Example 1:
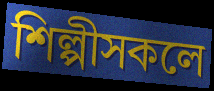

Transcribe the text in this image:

শিল্পীসকলে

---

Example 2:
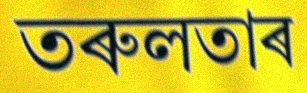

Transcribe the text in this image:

তৰুলতাৰ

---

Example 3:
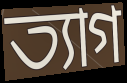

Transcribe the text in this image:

ত্যাগ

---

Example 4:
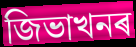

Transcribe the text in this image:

জিভাখনৰ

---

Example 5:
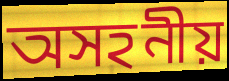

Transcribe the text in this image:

অসহনীয়